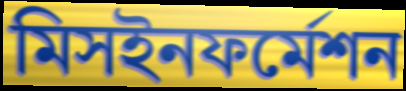
মিসইনফর্মেশন